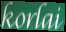
korlai